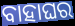
ବାହାଘର